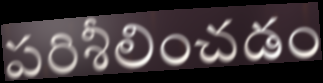
పరిశీలించడం